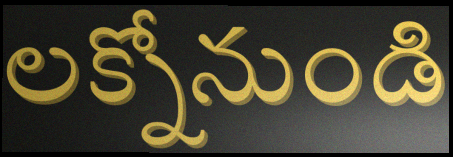
లక్నోనుండి